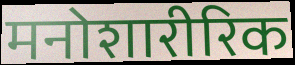
मनोशारीरिक